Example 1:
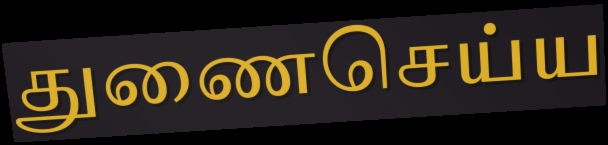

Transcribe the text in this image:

துணைசெய்ய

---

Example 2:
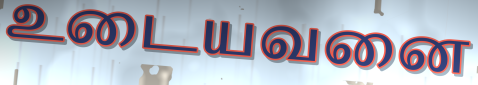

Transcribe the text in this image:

உடையவனை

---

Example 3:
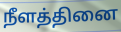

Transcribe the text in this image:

நீளத்தினை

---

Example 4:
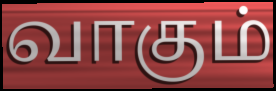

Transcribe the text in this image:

வாகும்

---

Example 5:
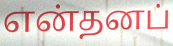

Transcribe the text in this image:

என்தனப்